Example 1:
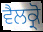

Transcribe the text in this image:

ਵੈਲਕ੍ਰੋ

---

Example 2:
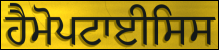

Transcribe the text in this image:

ਹੈਮੋਪਟਾਈਸਿਸ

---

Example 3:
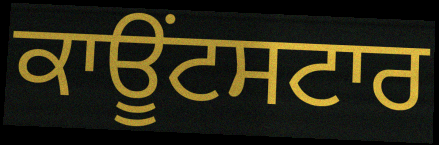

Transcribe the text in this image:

ਕਾਊਂਟਸਟਾਰ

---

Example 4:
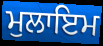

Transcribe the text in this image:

ਮੁਲਾਇਮ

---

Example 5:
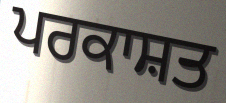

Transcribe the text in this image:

ਪਰਕਾਸ਼ਤ